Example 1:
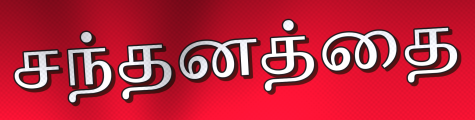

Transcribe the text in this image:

சந்தனத்தை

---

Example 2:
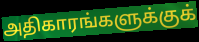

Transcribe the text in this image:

அதிகாரங்களுக்குக்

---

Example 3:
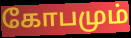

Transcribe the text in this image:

கோபமும்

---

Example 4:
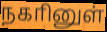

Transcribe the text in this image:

நகரினுள்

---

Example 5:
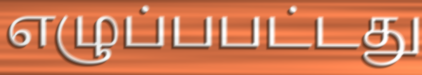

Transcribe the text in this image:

எழுப்பபட்டது